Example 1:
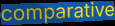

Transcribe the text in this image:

comparative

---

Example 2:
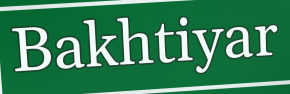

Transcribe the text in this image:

Bakhtiyar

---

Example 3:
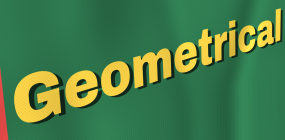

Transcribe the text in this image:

Geometrical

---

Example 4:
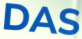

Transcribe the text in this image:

DAS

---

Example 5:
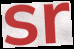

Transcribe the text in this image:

sr